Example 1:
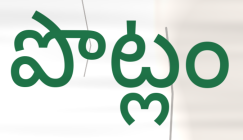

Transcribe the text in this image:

పొట్లం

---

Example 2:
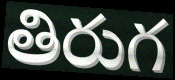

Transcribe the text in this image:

తిరుగ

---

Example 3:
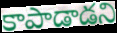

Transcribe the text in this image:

కాపాడాడని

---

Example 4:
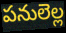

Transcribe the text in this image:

పనులెల్ల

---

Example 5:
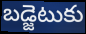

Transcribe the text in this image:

బడ్జెటుకు